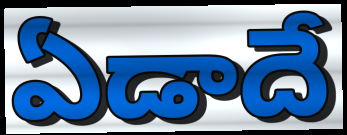
ఏడాదే